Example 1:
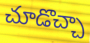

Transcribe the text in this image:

చూడొచ్చా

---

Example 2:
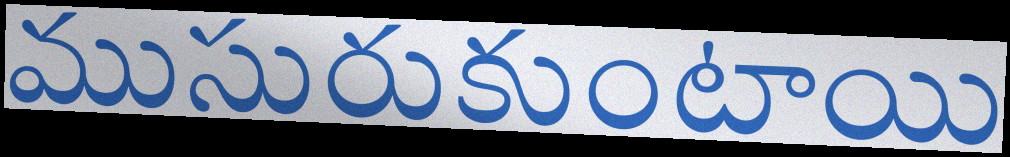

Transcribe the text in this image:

ముసురుకుంటాయి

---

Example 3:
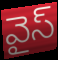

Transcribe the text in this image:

వైస్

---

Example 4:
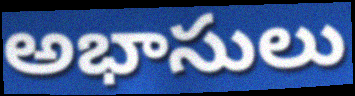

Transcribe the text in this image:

అభాసులు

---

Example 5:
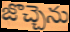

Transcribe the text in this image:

జొచ్చెను